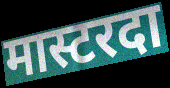
मास्टरदा